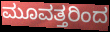
ಮೂವತ್ತರಿಂದ